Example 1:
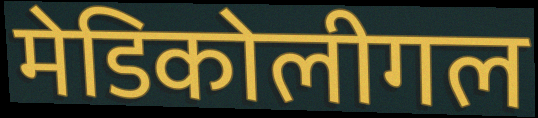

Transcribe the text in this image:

मेडिकोलीगल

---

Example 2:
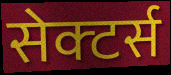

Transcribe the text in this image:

सेक्‍टर्स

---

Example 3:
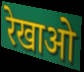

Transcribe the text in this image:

रेखाओ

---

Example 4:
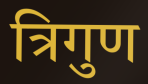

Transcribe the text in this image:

त्रिगुण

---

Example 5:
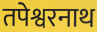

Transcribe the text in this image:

तपेश्वरनाथ